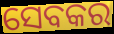
ସେବକର